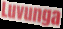
Luvunga